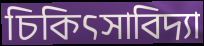
চিকিৎসাবিদ্যা